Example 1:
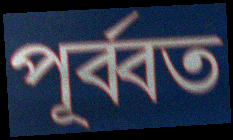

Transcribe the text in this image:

পূৰ্ব্বত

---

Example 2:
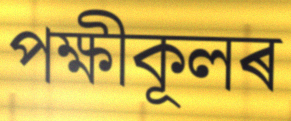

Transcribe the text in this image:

পক্ষীকূলৰ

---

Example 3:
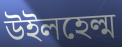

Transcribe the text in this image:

উইলহেল্ম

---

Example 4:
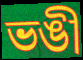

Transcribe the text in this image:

ভঙী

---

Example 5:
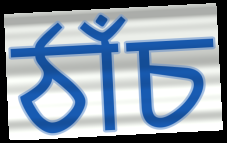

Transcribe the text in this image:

ঠাঁচ